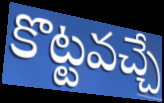
కొట్టవచ్చే